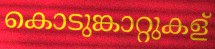
കൊടുങ്കാറ്റുകള്